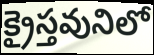
క్రైస్తవునిలో